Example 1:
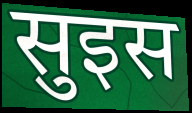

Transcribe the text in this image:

सुइस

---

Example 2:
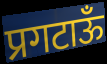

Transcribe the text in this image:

प्रगटाऊँ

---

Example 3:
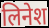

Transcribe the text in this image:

लिनेश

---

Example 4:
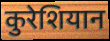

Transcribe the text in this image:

कुरेशियान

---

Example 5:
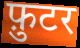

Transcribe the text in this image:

फ़ुटर